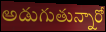
అడుగుతున్నారో